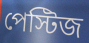
পেস্টিজ